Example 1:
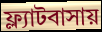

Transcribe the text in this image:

ফ্ল্যাটবাসায়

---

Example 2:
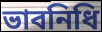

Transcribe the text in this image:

ভাবনিধি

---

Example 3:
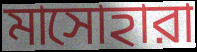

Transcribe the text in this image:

মাসোহারা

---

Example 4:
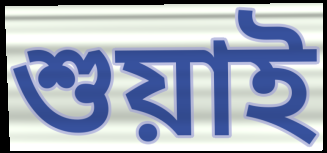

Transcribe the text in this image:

শুয়াই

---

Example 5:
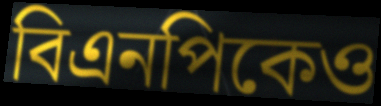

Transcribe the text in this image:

বিএনপিকেও